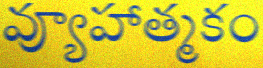
వ్యూహాత్మకం